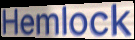
Hemlock